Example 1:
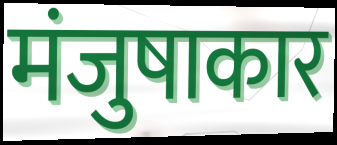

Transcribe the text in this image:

मंजुषाकार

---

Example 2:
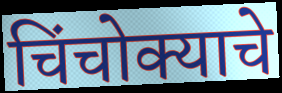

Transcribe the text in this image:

चिंचोक्याचे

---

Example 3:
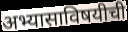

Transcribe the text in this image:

अभ्यासाविषयीची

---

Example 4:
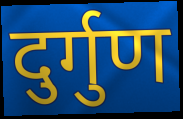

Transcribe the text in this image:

दुर्गुण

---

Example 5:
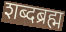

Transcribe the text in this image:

शब्दब्रह्म